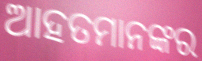
ଆହତମାନଙ୍କର